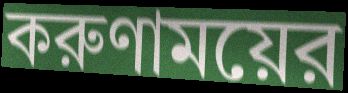
করুণাময়ের